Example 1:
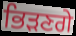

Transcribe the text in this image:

ਭਿੜਣਗੇ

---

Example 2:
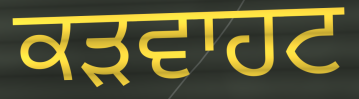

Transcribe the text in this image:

ਕੜਵਾਹਟ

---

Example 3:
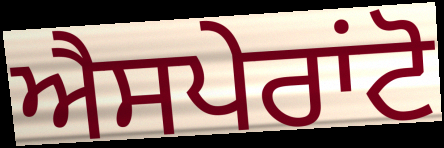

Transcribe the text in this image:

ਐਸਪੇਰਾਂਟੋ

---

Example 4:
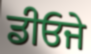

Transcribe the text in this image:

ਡੀਓਜੇ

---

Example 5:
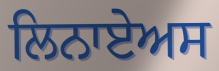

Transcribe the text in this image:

ਲਿਨਾਏਅਸ